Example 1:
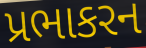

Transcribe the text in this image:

પ્રભાકરન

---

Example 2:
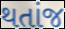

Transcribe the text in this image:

થતાંજ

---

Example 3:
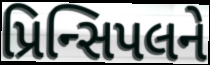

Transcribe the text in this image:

પ્રિન્સિપલને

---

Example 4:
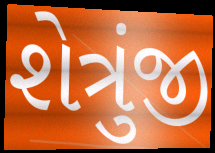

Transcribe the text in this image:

શેત્રુંજી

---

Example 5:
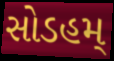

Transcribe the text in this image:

સોડહમ્